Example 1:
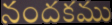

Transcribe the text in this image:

నందకము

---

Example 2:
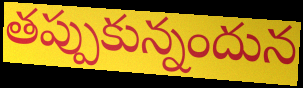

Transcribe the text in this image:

తప్పుకున్నందున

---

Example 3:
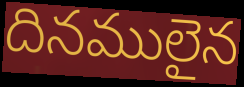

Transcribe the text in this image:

దినములైన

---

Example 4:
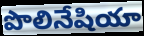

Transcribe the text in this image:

పొలినేషియా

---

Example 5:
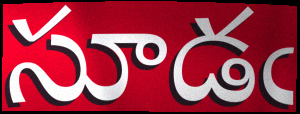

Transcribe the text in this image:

సూడఁ